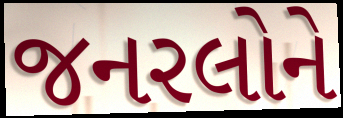
જનરલોને